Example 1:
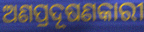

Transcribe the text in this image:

ଅଣପ୍ରଦୂଷଣକାରୀ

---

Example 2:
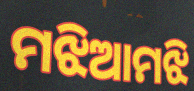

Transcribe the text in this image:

ମଝିଆମଝି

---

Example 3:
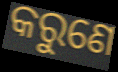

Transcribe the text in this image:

କରୁଣେ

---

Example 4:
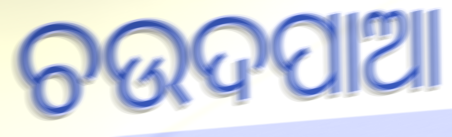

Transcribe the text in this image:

ଚଉଦପାଆ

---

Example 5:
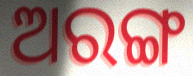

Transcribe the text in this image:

ଅରଙ୍ଗ